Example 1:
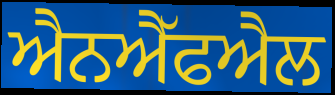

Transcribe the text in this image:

ਐਨਐੱਫਐਲ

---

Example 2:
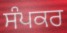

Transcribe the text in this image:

ਸੰਪਕਰ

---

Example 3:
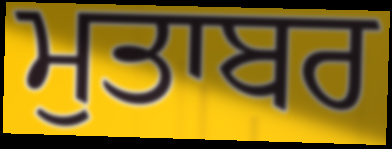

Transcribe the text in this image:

ਮੁਤਾਬਰ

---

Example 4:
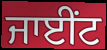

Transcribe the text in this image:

ਜਾਈਂਟ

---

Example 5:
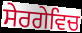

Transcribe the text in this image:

ਸੇਰਗੇਵਿਚ